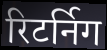
रिटर्निग